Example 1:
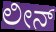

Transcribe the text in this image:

ಲೀನ್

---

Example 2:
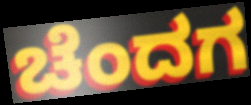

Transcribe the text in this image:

ಚೆಂದಗ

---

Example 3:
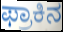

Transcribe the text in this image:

ಫ್ರಾಕಿನ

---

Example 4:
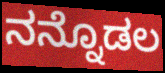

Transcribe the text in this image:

ನನ್ನೊಡಲ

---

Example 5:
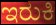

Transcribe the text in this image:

ಇರುಕಿ